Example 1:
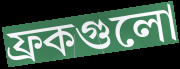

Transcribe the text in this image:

ফ্রকগুলো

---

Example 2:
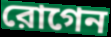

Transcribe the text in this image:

রোগেন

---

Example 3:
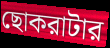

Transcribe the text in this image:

ছোকরাটার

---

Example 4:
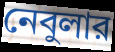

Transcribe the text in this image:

নেবুলার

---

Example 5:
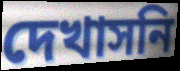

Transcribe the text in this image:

দেখাসনি